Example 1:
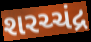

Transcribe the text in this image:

શરચ્ચંદ્ર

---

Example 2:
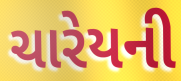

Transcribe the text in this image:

ચારેયની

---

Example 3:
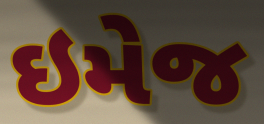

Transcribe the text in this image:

ઇમેજ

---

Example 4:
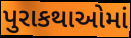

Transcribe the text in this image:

પુરાકથાઓમાં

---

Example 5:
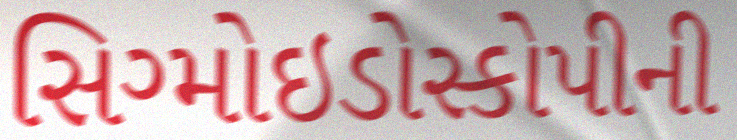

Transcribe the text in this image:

સિગ્મોઇડોસ્કોપીની